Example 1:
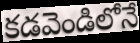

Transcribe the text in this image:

కడవెండిలోనే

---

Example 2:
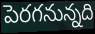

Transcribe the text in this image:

పెరగనున్నది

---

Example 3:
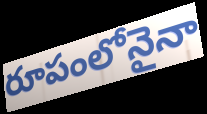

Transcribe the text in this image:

రూపంలోనైనా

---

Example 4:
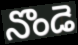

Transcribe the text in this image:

నొండె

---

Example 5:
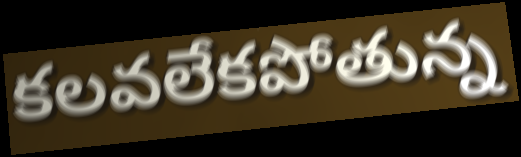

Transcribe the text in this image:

కలవలేకపోతున్న